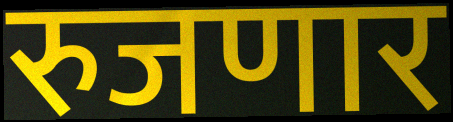
रुजणार